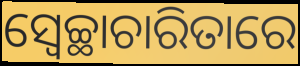
ସ୍ୱେଚ୍ଛାଚାରିତାରେ